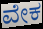
ವೇಕ